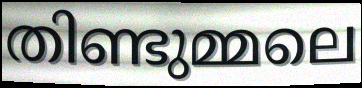
തിണ്ടുമ്മലെ